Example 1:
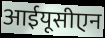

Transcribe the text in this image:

आईयूसीएन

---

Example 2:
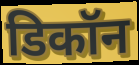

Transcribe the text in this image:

डिकॉन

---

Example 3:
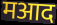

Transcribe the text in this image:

मआद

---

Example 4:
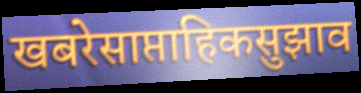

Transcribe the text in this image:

खबरेसाप्ताहिकसुझाव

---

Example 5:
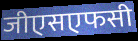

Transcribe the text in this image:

जीएसएफसी